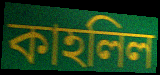
কাহলিল